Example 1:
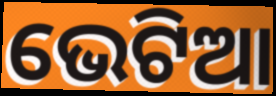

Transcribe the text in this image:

ଭେଟିଆ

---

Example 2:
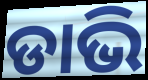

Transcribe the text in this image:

ଡାଭି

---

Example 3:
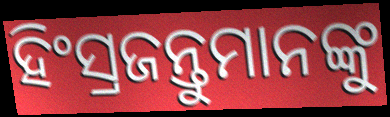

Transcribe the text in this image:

ହିଂସ୍ରଜନ୍ତୁମାନଙ୍କୁ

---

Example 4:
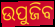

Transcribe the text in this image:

ଉପୁଜିବ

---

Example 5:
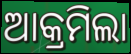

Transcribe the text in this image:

ଆକ୍ରମିଲା